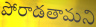
పోరాడతామని